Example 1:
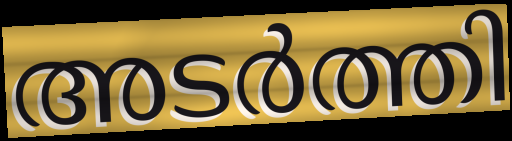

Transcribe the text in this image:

അടർത്തി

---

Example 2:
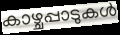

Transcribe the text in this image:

കാഴ്ചപ്പാടുകൾ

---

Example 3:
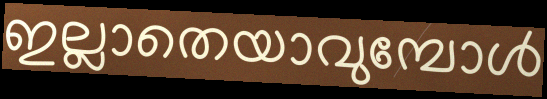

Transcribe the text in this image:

ഇല്ലാതെയാവുമ്പോൾ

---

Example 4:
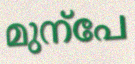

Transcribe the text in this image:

മുന്പേ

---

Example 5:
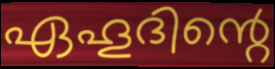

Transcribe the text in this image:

ഏഹൂദിന്റെ